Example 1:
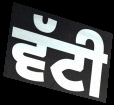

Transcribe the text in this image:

ਵੱਟੀ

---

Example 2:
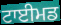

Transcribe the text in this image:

ਟਾਈਮਡ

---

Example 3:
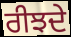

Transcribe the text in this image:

ਰੀਝਦੇ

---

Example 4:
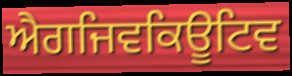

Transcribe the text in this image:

ਐਗਜਿਵਕਿਊਟਿਵ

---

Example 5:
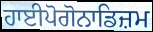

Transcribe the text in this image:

ਹਾਈਪੋਗੋਨਾਡਿਜ਼ਮ